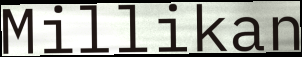
Millikan